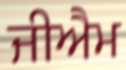
ਜੀਐਮ